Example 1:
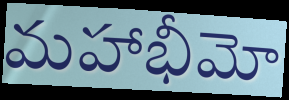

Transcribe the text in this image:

మహాభీమో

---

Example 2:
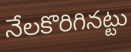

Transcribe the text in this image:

నేలకొరిగినట్టు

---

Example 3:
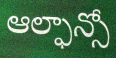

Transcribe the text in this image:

ఆల్ఫాన్సో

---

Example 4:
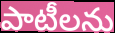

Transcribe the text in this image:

పాటీలను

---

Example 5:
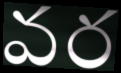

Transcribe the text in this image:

వర